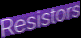
Resistors